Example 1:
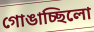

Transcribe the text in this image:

গোঙাচ্ছিলো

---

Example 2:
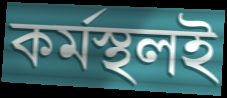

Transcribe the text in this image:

কর্মস্থলই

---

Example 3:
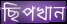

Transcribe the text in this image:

ছিপখান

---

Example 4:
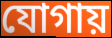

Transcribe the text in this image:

যোগায়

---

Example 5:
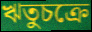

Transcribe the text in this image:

ঋতুচক্রে